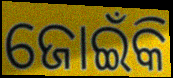
ଜୋଇଁକି